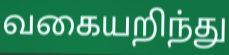
வகையறிந்து